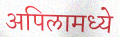
अपिलामध्ये